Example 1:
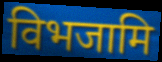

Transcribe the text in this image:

विभजामि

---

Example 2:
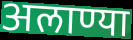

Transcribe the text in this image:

अलाण्या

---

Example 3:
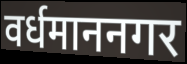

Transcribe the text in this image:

वर्धमाननगर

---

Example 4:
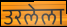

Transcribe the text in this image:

उरलेला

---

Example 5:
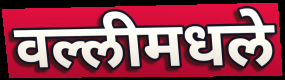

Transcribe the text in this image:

वल्लीमधले